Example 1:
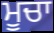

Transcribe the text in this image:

ਮੂਚਾ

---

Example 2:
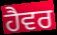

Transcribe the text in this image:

ਹੈਵਰ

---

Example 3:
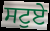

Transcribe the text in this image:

ਸਟੁਏ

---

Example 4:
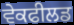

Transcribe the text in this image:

ਵੇਕਫੀਲਡ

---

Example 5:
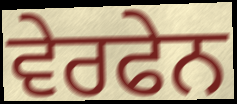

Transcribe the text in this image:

ਵੇਰਫੇਨ